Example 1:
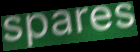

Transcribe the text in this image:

spares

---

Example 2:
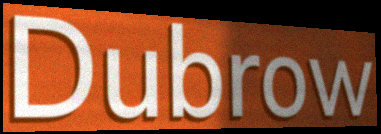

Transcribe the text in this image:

Dubrow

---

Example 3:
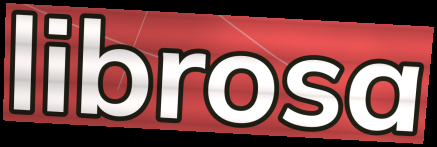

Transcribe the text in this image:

librosa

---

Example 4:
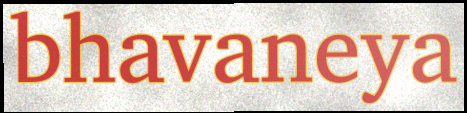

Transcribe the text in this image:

bhavaneya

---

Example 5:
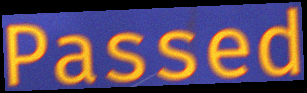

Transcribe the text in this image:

Passed